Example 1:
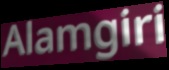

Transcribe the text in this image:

Alamgiri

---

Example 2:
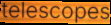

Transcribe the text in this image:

telescopes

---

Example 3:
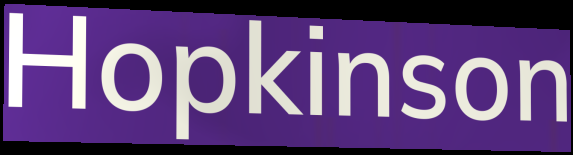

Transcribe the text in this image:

Hopkinson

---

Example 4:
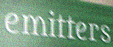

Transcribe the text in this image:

emitters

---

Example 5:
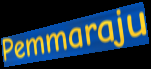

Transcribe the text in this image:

Pemmaraju